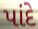
પાંદે